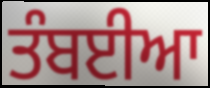
ਤੰਬਈਆ